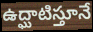
ఉద్ఘాటిస్తూనే